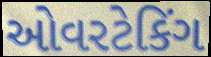
ઓવરટેકિંગ